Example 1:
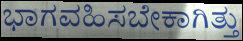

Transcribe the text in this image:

ಭಾಗವಹಿಸಬೇಕಾಗಿತ್ತು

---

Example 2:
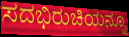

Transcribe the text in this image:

ಸದಭಿರುಚಿಯನ್ನೂ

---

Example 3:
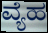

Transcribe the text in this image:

ವ್ಯೆಹ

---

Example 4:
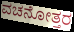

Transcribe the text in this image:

ವಚನೋತ್ತರ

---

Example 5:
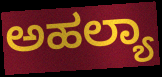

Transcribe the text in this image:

ಅಹಲ್ಯಾ